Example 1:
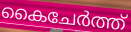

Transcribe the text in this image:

കൈചേർത്ത്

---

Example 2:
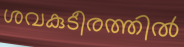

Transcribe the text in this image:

ശവകുടീരത്തിൽ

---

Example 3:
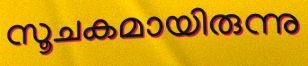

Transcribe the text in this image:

സൂചകമായിരുന്നു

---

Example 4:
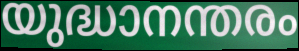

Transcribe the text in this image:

യുദ്ധാനന്തരം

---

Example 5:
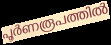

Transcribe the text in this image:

പൂർണരൂപത്തിൽ